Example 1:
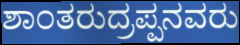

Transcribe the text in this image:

ಶಾಂತರುದ್ರಪ್ಪನವರು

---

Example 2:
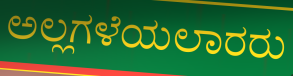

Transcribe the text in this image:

ಅಲ್ಲಗಳೆಯಲಾರರು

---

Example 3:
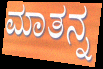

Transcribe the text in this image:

ಮಾತನ್ನ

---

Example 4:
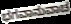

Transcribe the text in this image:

ಭಗವಾನುವಾಚ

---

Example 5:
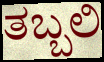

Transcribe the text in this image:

ತಬ್ಬಲಿ